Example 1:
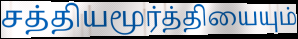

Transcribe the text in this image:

சத்தியமூர்த்தியையும்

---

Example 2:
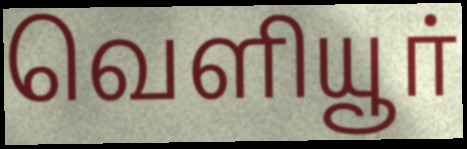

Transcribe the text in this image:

வெளியூர்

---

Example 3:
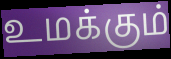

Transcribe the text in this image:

உமக்கும்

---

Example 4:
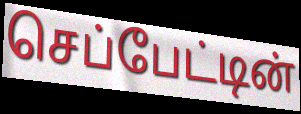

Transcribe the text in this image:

செப்பேட்டின்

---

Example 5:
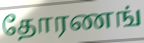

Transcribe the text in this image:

தோரணங்